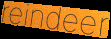
reindeer